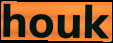
houk